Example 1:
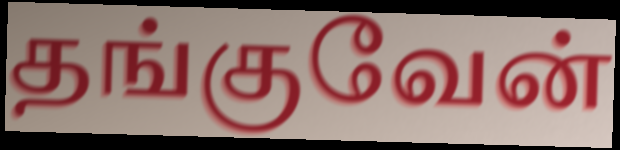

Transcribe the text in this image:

தங்குவேன்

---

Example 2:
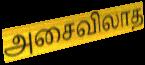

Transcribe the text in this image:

அசைவிலாத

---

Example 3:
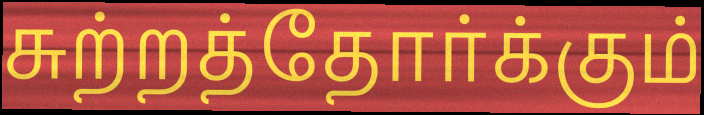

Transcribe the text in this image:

சுற்றத்தோர்க்கும்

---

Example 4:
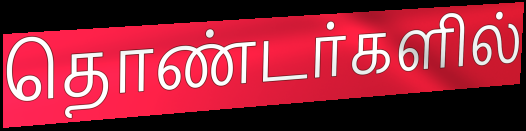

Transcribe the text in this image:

தொண்டர்களில்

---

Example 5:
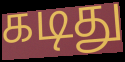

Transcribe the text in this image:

கடிது